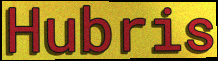
Hubris